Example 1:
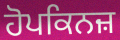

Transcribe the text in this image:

ਹੋਪਕਿਨਜ਼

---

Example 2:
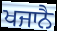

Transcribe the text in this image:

ਖਜਾਨੈ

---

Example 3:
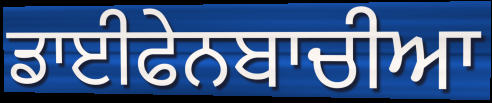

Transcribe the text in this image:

ਡਾਈਫੇਨਬਾਚੀਆ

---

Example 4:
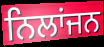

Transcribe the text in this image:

ਨਿਲਾਂਜਨ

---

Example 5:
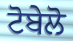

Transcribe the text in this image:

ਟੋਬੇਲੋ